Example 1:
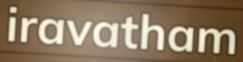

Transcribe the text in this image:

iravatham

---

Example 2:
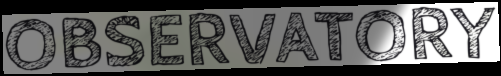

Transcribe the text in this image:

OBSERVATORY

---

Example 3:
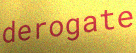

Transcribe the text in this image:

derogate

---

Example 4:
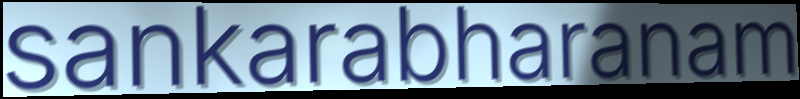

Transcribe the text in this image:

sankarabharanam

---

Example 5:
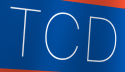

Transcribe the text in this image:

TCD